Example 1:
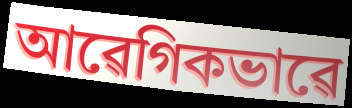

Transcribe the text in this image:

আৱেগিকভাৱে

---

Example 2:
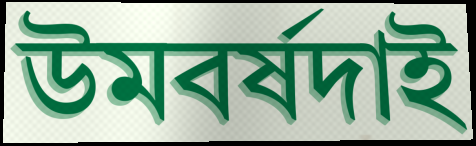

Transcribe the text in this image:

উমবৰ্ষদাই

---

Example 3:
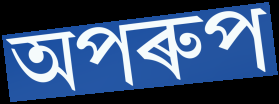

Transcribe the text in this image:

অপৰুপ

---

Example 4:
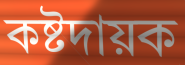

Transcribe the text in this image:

কষ্টদায়ক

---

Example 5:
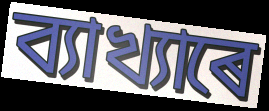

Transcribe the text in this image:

ব্যাখ্যাৰে